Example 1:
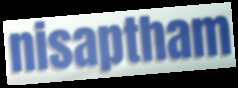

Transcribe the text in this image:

nisaptham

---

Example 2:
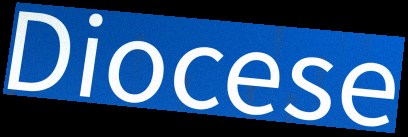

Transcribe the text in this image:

Diocese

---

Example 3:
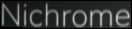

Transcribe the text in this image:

Nichrome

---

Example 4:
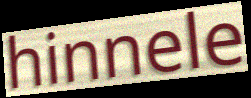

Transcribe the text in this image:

hinnele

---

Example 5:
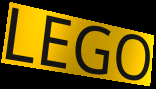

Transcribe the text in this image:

LEGO